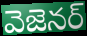
వెజెనర్